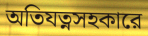
অতিযত্নসহকারে